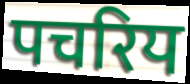
पचरिय